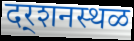
दर्शनस्थळ